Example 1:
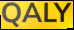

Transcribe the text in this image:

QALY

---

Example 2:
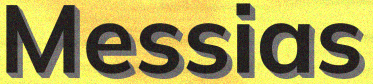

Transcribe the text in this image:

Messias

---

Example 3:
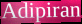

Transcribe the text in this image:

Adipiran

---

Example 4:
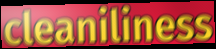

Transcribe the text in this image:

cleaniliness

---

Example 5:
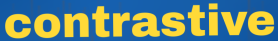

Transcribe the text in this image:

contrastive